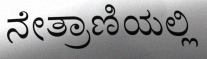
ನೇತ್ರಾಣಿಯಲ್ಲಿ